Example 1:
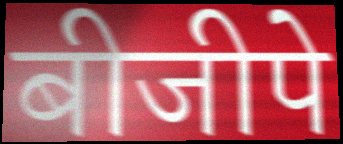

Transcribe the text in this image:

बीजीपे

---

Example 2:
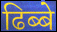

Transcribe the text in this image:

ढिब्बे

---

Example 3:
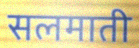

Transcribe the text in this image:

सलमाती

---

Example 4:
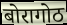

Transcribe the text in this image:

बोरागोठ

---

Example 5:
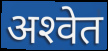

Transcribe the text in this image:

अश्‍वेत